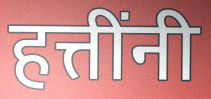
हत्तींनी